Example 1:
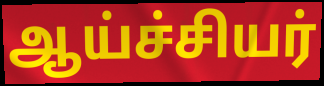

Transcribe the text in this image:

ஆய்ச்சியர்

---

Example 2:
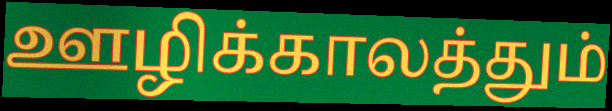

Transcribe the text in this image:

ஊழிக்காலத்தும்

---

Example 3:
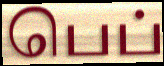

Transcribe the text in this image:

பெப்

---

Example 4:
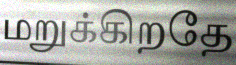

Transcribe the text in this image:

மறுக்கிறதே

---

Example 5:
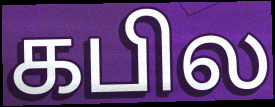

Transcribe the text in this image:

கபில